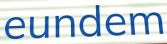
eundem